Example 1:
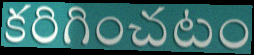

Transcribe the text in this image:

కరిగించటం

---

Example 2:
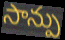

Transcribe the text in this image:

సాన్పు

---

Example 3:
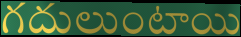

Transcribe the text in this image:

గదులుంటాయి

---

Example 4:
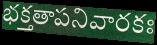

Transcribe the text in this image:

భక్తతాపనివారకః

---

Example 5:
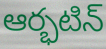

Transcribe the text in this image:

ఆర్భటిన్